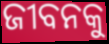
ଜୀବନକୁ